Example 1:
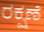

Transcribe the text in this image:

ರಕ್ಷಣೆ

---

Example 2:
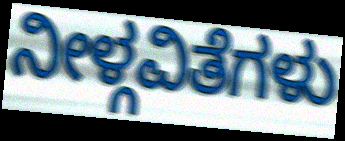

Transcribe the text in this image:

ನೀಳ್ಗವಿತೆಗಳು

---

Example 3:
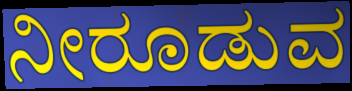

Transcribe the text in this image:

ನೀರೂಡುವ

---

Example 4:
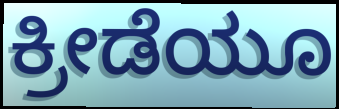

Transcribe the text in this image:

ಕ್ರೀಡೆಯೂ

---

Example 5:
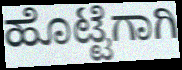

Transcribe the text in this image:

ಹೊಟ್ಟೆಗಾಗಿ